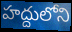
హద్దులోని